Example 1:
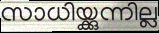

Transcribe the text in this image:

സാധിയ്ക്കുന്നില്ല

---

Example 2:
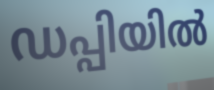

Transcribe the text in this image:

ഡപ്പിയിൽ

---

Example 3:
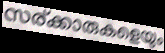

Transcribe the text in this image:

സര്ക്കാരുകളെയും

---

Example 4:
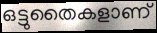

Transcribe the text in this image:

ഒട്ടുതൈകളാണ്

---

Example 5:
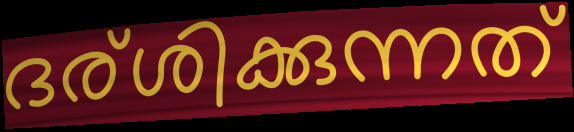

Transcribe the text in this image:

ദര്ശിക്കുന്നത്